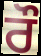
ਰੌ